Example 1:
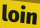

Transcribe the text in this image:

loin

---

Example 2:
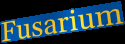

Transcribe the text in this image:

Fusarium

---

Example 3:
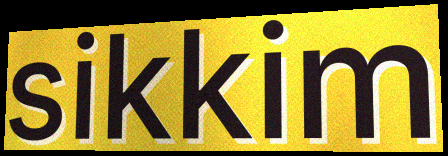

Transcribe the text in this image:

sikkim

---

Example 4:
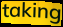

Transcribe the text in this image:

taking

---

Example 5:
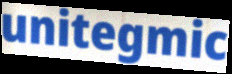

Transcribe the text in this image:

unitegmic